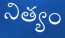
నిత్యం